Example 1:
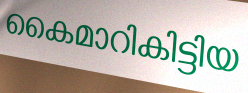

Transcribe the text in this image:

കൈമാറികിട്ടിയ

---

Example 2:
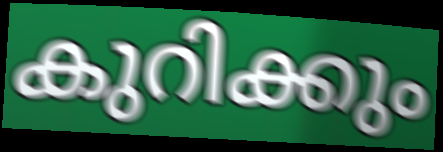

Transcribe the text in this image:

കുറിക്കും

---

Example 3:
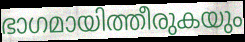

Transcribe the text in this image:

ഭാഗമായിത്തീരുകയും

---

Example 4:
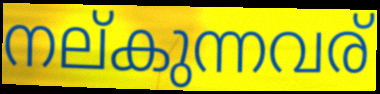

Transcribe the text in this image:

നല്കുന്നവര്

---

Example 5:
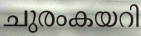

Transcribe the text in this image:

ചുരംകയറി